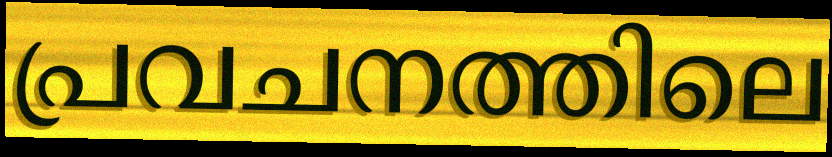
പ്രവചനത്തിലെ